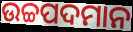
ଉଚ୍ଚପଦମାନ